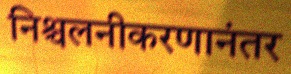
निश्चलनीकरणानंतर